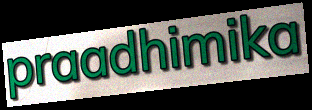
praadhimika